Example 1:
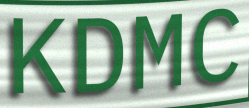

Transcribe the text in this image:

KDMC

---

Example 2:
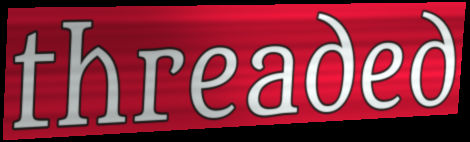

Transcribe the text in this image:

threaded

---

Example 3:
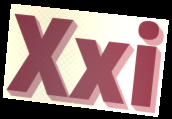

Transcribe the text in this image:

Xxi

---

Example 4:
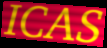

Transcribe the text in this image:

ICAS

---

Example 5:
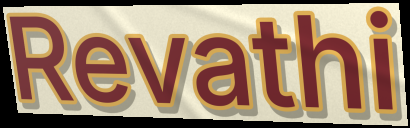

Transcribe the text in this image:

Revathi